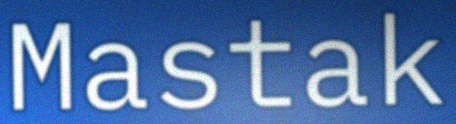
Mastak